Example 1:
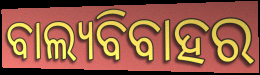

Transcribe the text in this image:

ବାଲ୍ୟବିବାହର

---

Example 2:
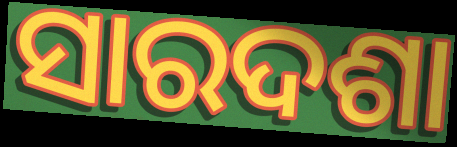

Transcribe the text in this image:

ସାରଦଶା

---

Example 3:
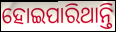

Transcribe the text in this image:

ହୋଇପାରିଥାନ୍ତି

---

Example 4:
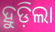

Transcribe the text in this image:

ହୁଡ଼ିଲା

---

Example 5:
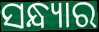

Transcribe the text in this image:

ସନ୍ଧ୍ୟାର